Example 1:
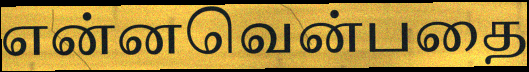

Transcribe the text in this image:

என்னவென்பதை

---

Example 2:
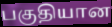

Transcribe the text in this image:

பகுதியான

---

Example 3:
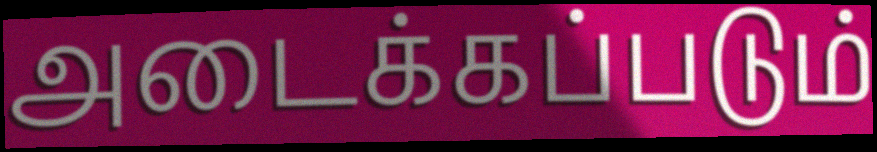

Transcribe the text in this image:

அடைக்கப்படும்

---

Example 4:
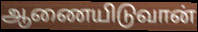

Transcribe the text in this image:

ஆணையிடுவான்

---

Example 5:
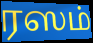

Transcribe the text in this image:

ரஸம்